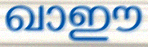
ഖാഈ